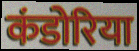
कंडोरिया